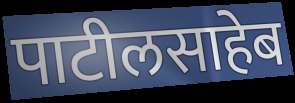
पाटीलसाहेब